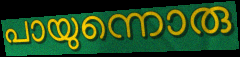
പായുന്നൊരു